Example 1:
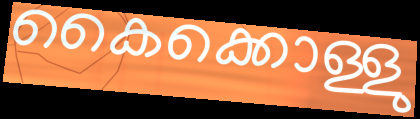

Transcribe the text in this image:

കൈക്കൊള്ളു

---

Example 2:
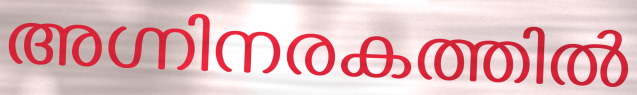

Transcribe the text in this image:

അഗ്നിനരകത്തിൽ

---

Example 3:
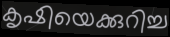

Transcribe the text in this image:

കൃഷിയെക്കുറിച്ച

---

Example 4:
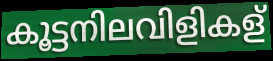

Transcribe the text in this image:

കൂട്ടനിലവിളികള്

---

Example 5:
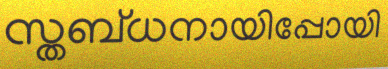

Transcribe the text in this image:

സ്തബ്ധനായിപ്പോയി